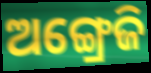
ଅଙ୍ଗ୍ରେଜି